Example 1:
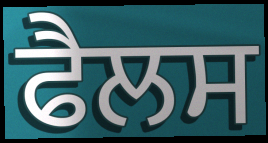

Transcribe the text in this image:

ਫੈਲਸ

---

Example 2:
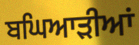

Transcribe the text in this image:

ਬਘਿਆੜੀਆਂ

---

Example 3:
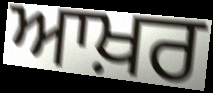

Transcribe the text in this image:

ਆਖ਼ਰ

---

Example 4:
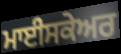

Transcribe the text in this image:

ਮਾਈਸਕੇਅਰ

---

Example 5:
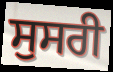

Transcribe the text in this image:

ਸੁਸਰੀ